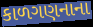
કાળગણનાના